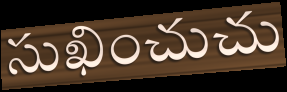
సుఖించుచు